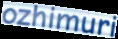
ozhimuri